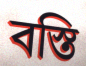
বস্তি